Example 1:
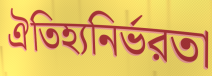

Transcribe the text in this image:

ঐতিহ্যনির্ভরতা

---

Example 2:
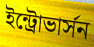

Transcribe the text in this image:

ইন্ট্রোভার্সন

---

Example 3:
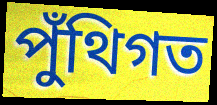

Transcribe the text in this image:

পুঁথিগত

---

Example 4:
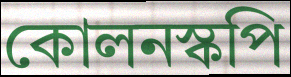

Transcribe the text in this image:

কোলনস্কপি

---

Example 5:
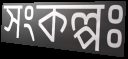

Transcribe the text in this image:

সংকল্পঃ